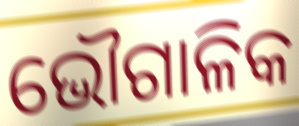
ଭୌଗାଳିକ